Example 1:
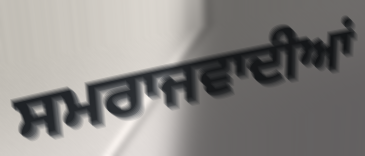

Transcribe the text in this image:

ਸਮਰਾਜਵਾਦੀਆਂ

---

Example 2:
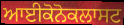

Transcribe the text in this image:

ਆਈਕੋਨੋਕਲਾਸਟ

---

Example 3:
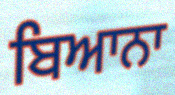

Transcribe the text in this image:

ਬਿਆਨਾ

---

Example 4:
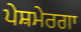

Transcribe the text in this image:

ਪੇਸ਼ਮੇਰਗਾ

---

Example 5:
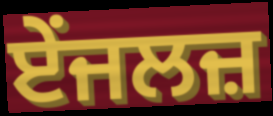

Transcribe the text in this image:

ਏਂਜਲਜ਼